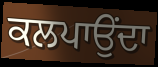
ਕਲਪਾਉਂਦਾ